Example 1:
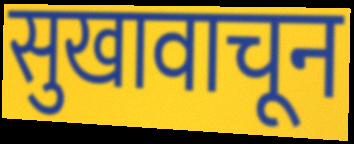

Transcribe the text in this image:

सुखावाचून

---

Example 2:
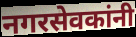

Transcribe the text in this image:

नगरसेवकांनी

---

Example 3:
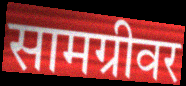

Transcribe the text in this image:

सामग्रीवर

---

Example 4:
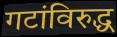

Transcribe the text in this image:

गटांविरुद्ध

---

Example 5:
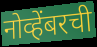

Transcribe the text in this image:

नोव्हेंबरची